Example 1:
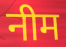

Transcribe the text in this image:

नीम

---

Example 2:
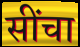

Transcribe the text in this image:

सींचा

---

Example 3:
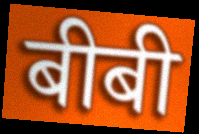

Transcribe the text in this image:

बीबी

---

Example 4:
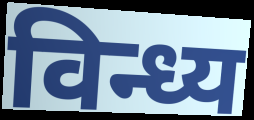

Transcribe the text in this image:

विन्ध्य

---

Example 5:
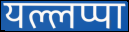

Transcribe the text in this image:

यल्लप्पा